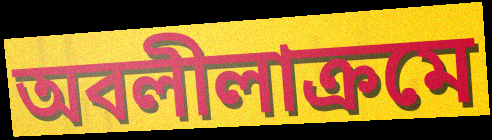
অবলীলাক্রমে